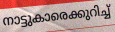
നാട്ടുകാരെക്കുറിച്ച്